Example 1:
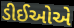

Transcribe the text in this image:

ડીઈઓએ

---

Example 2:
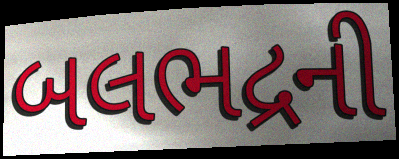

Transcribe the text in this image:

બલભદ્રની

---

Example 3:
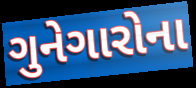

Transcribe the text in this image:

ગુનેગારોના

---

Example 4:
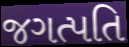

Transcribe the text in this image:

જગત્પતિ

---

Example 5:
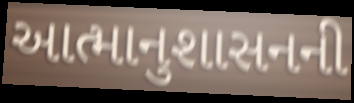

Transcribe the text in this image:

આત્માનુશાસનની